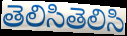
తెలిసితెలిసి